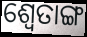
ଶ୍ୱେତାଙ୍ଗ